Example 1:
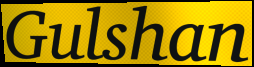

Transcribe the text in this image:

Gulshan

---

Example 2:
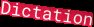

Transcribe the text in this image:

Dictation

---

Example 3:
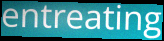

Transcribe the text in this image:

entreating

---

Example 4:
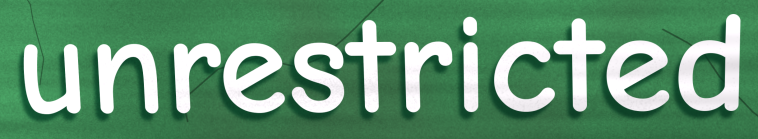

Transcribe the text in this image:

unrestricted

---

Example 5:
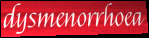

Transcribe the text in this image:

dysmenorrhoea